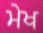
ਮੇਖ